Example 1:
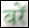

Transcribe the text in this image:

बरें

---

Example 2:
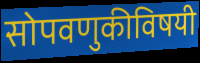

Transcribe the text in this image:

सोपवणुकीविषयी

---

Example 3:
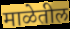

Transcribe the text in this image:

माळेतील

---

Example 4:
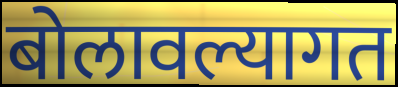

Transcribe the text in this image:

बोलावल्यागत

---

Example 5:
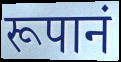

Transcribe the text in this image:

रूपानं